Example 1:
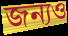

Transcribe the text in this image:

জন্যও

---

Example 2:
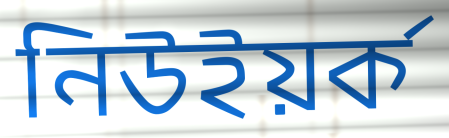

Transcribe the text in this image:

নিউইয়র্ক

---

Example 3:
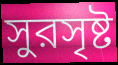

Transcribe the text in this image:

সুরসৃষ্ট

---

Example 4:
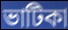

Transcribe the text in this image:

ভাটিকা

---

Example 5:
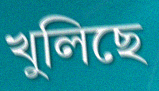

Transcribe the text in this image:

খুলিছে